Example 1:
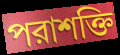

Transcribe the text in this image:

পরাশক্তি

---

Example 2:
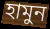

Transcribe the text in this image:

হামুন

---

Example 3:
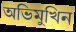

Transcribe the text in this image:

অভিমুখিন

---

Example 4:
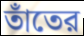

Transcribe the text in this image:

তাঁতের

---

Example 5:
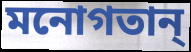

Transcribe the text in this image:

মনোগতান্